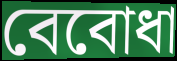
বেবোধা